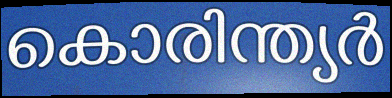
കൊരിന്ത്യർ